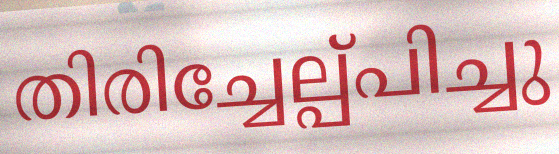
തിരിച്ചേല്പ്പിച്ചു